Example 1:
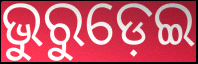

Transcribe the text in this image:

ଭୁରୁଡ଼େଇ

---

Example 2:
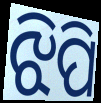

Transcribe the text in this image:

ଝିପି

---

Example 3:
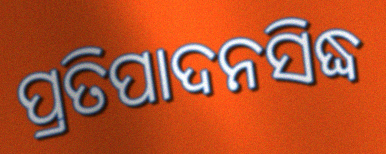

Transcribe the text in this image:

ପ୍ରତିପାଦନସିଦ୍ଧ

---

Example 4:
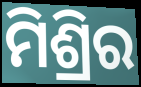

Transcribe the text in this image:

ମିଶ୍ରିର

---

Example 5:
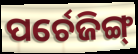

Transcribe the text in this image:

ପର୍ଚେଜିଙ୍ଗ୍